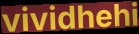
vividhehi